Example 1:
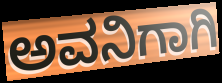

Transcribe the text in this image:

ಅವನಿಗಾಗಿ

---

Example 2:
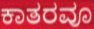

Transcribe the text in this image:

ಕಾತರವೂ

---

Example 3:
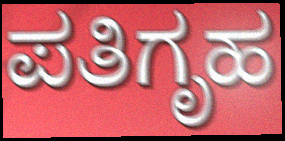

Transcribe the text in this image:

ಪತಿಗೃಹ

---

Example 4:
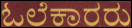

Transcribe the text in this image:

ಓಲೆಕಾರರು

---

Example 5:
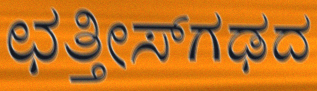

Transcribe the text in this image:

ಛತ್ತೀಸ್‌ಗಢದ